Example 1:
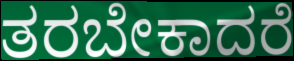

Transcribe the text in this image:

ತರಬೇಕಾದರೆ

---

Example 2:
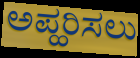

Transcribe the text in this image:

ಅಪ್ಹರಿಸಲು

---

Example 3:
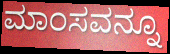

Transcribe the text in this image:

ಮಾಂಸವನ್ನೂ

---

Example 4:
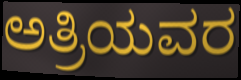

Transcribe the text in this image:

ಅತ್ರಿಯವರ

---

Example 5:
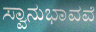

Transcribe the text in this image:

ಸ್ವಾನುಭಾವವೆ